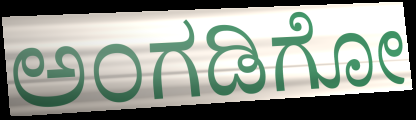
ಅಂಗಡಿಗೋ